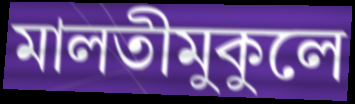
মালতীমুকুলে